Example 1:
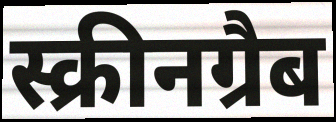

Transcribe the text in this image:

स्क्रीनग्रैब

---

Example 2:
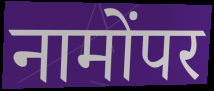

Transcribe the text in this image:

नामोंपर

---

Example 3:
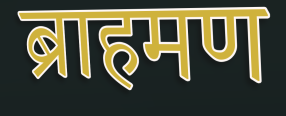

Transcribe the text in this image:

ब्राहमण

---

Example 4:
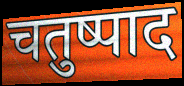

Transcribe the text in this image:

चतुष्पाद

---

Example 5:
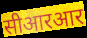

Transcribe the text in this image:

सीआरआर